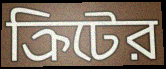
ক্রিটের